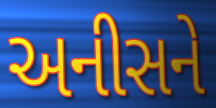
અનીસને